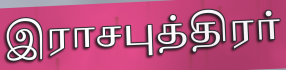
இராசபுத்திரர்